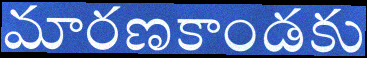
మారణకాండకు